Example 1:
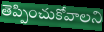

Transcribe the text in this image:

తెప్పించుకోవాలని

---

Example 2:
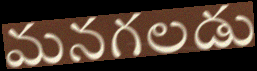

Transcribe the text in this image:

మనగలడు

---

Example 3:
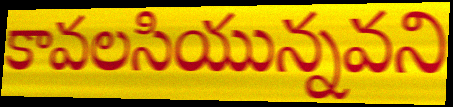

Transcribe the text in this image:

కావలసియున్నవని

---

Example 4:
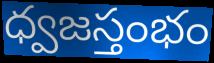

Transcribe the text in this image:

ధ్వజస్తంభం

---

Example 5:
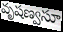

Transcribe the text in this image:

వృషణ్వసూ